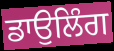
ਡਾਉਲਿੰਗ